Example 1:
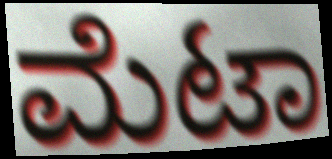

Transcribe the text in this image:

ಮೆಟಾ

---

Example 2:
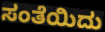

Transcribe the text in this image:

ಸಂತೆಯಿದು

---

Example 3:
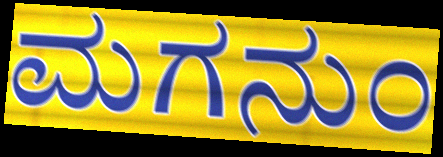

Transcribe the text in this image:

ಮಗನುಂ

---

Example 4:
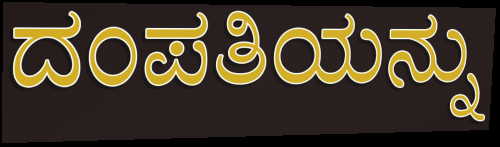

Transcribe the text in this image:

ದಂಪತಿಯನ್ನು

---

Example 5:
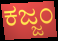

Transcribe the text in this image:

ಕಜ್ಜಂ